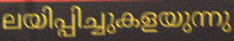
ലയിപ്പിച്ചുകളയുന്നു